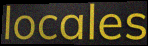
locales